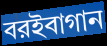
বরইবাগান